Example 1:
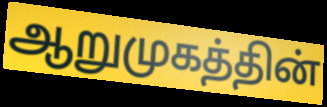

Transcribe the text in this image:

ஆறுமுகத்தின்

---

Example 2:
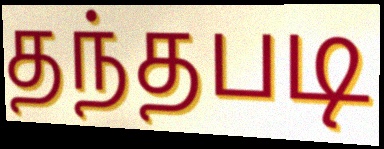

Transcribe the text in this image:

தந்தபடி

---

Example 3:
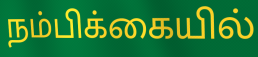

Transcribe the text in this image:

நம்பிக்கையில்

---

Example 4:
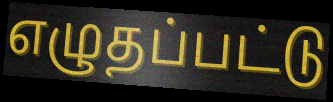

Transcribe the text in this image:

எழுதப்பட்டு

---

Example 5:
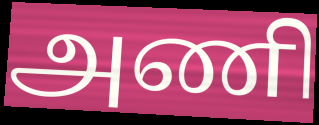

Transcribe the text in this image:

அணி